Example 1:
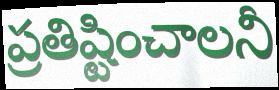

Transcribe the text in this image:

ప్రతిష్టించాలనీ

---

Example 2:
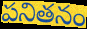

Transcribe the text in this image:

పనితనం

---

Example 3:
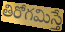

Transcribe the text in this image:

తిరోగమిస్తే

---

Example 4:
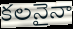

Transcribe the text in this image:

కలనైనా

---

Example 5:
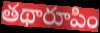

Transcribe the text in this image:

తథారూపిం